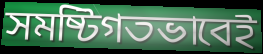
সমষ্টিগতভাবেই